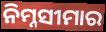
ନିମ୍ନସୀମାର